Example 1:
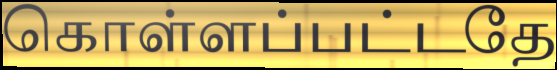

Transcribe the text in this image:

கொள்ளப்பட்டதே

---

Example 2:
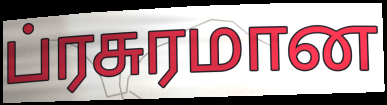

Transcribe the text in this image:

ப்ரசுரமான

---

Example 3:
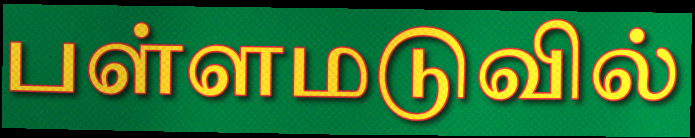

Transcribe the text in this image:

பள்ளமடுவில்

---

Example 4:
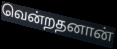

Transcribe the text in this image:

வென்றதனான்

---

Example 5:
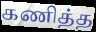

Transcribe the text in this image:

கணித்த